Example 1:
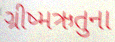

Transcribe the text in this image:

ગ્રીષ્મઋતુના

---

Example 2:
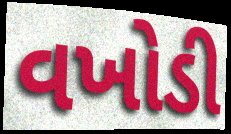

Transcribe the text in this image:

વખોડી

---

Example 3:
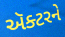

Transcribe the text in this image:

ઍક્ટરને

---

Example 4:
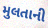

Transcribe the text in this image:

મુલતાની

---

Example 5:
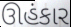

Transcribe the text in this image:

ઊહંકાર